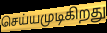
செய்யமுடிகிறது